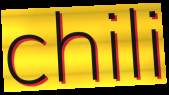
chili